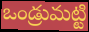
ఒండ్రుమట్టి